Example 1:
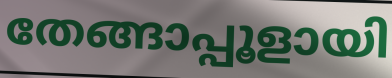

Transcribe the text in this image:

തേങ്ങാപ്പൂളായി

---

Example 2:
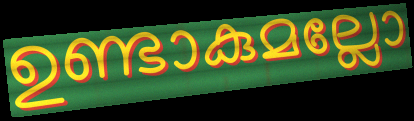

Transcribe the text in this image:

ഉണ്ടാകുമല്ലോ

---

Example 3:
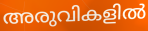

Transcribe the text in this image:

അരുവികളിൽ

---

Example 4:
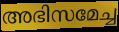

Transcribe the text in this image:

അഭിസമേച്ച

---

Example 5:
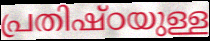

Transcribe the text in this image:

പ്രതിഷ്ഠയുള്ള